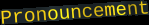
Pronouncement